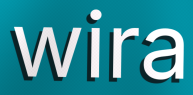
wira